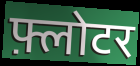
फ़्लोटर